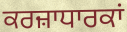
ਕਰਜ਼ਾਧਾਰਕਾਂ